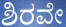
ಶಿರವೇ